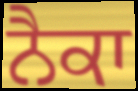
ਨੈਕਾ